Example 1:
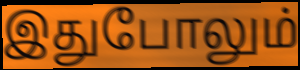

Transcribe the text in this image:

இதுபோலும்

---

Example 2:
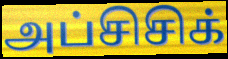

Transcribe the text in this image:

அப்சிசிக்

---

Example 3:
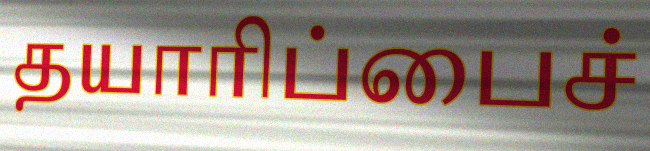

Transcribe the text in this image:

தயாரிப்பைச்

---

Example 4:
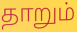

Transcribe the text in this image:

தாறும்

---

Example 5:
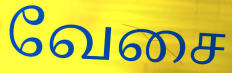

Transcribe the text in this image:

வேசை